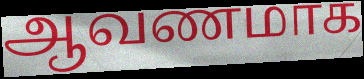
ஆவணமாக